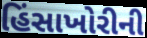
હિંસાખોરીની